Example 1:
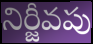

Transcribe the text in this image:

నిర్జీవపు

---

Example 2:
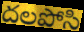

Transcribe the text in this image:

దలపోసి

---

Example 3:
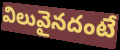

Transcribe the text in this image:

విలువైనదంటే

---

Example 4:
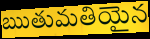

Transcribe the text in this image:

ఋతుమతియైన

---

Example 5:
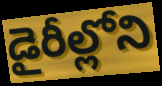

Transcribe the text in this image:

డైరీల్లోని